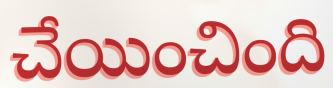
చేయించింది